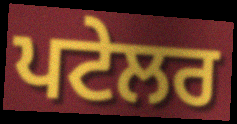
ਪਟੇਲਰ